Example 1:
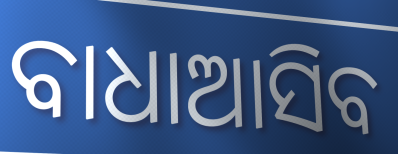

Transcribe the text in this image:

ବାଧାଆସିବ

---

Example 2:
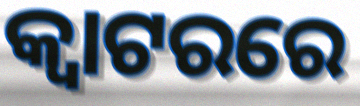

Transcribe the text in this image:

କ୍ୱାଟରରେ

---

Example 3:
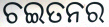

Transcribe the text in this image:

ଚଇତନର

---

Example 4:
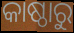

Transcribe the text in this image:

କାଷ୍ଠାରୁ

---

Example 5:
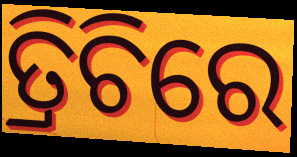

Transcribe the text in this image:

ତ୍ରିଚିରେ